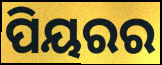
ପିୟରର